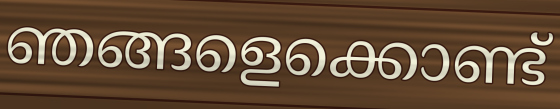
ഞങ്ങളെക്കൊണ്ട്